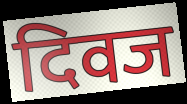
दिवज